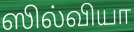
ஸில்வியா